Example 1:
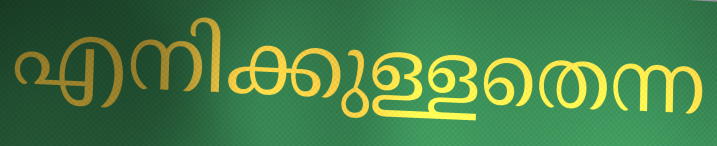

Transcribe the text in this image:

എനിക്കുള്ളതെന്ന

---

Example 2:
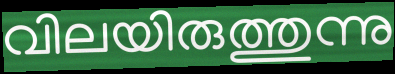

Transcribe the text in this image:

വിലയിരുത്തുന്നു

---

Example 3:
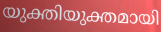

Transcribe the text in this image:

യുക്തിയുക്തമായി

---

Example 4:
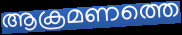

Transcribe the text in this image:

ആക്രമണത്തെ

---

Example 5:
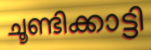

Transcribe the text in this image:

ചൂണ്ടിക്കാട്ടി